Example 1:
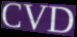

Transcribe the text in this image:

CVD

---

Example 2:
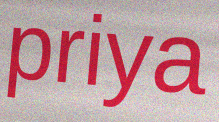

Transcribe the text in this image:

priya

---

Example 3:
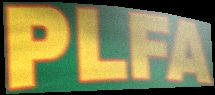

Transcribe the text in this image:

PLFA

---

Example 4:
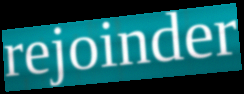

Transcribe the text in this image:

rejoinder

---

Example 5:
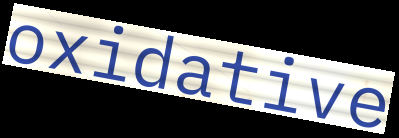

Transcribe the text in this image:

oxidative